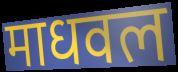
माधवल